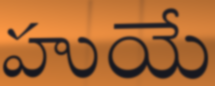
హుయే